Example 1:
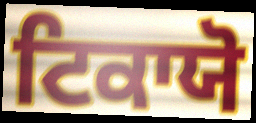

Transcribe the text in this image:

ਟਿਕਾਯੋ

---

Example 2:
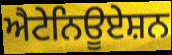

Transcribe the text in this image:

ਐਟੇਨਿਊਏਸ਼ਨ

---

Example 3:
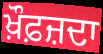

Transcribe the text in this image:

ਖ਼ੌਫ਼ਜ਼ਦਾ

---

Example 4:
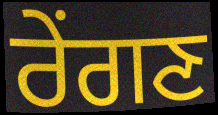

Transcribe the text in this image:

ਰੇਂਗਣ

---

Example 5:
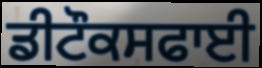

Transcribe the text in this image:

ਡੀਟੌਕਸਫਾਈ